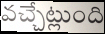
వచ్చేట్లుంది